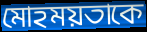
মোহময়তাকে